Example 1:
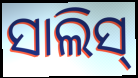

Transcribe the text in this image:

ସାଲିସ୍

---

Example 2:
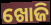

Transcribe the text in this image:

ଖୋଜି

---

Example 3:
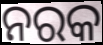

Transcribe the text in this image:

ନରକ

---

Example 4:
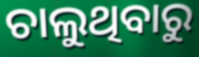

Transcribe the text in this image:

ଚାଲୁଥିବାରୁ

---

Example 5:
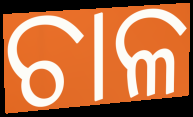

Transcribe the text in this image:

ଚାଳ